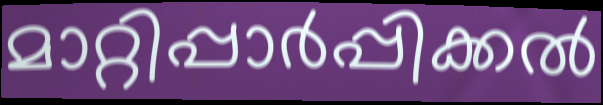
മാറ്റിപ്പാർപ്പിക്കൽ